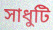
সাধুটি